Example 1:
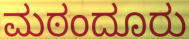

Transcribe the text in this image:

ಮಠಂದೂರು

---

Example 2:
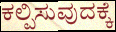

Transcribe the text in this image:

ಕಲ್ಪಿಸುವುದಕ್ಕೆ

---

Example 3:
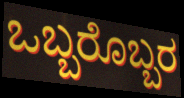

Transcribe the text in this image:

ಒಬ್ಬರೊಬ್ಬರ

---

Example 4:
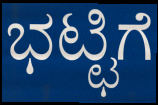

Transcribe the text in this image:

ಭಟ್ಟಿಗೆ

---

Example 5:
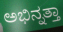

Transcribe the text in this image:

ಅಭಿನ್ನತ್ತಾ